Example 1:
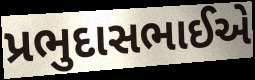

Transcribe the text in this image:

પ્રભુદાસભાઈએ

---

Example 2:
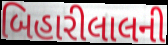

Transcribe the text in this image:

બિહારીલાલની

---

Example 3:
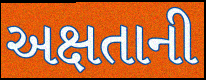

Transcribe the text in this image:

અક્ષતાની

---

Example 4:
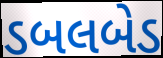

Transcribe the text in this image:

ડબલબેડ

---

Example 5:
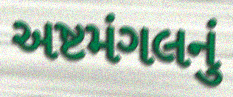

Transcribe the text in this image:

અષ્ટમંગલનું